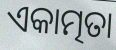
ଏକାତ୍ମତା